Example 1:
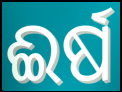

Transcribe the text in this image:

ଈର୍ଷ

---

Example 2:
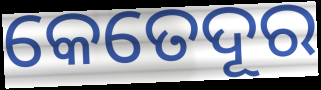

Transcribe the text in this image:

କେତେଦୂର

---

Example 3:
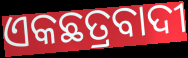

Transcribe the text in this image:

ଏକଛତ୍ରବାଦୀ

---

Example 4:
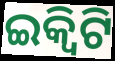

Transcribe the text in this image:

ଇକ୍ବିଟି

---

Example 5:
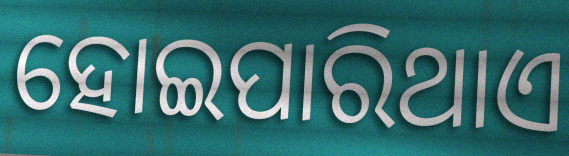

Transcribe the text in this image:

ହୋଇପାରିଥାଏ